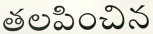
తలపించిన